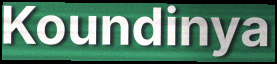
Koundinya